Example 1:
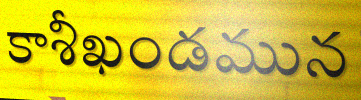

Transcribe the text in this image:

కాశీఖండమున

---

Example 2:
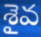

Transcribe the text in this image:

శైవ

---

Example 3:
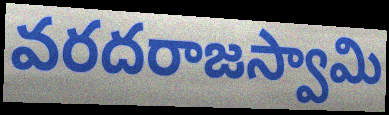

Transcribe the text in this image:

వరదరాజస్వామి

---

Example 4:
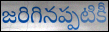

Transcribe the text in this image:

జరిగినప్పటికీ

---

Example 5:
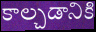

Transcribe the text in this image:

కాల్చడానికి